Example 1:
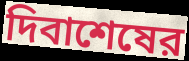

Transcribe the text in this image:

দিবাশেষের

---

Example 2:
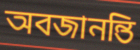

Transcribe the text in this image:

অবজানন্তি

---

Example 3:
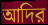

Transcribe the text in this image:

আদির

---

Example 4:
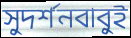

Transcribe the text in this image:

সুদর্শনবাবুই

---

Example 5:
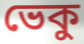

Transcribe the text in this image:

ভেকু